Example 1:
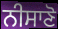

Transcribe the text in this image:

ਨੀਸਾਣੋ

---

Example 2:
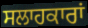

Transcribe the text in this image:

ਸਲਾਹਕਾਰਾਂ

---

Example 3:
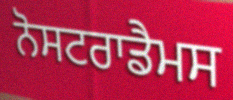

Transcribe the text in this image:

ਨੋਸਟਰਾਡੈਮਸ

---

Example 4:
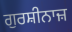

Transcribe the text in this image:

ਗੁਰਸ਼ੀਨਾਜ਼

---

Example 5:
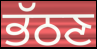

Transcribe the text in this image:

ਭੱਠਣ